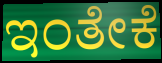
ಇಂತೇಕೆ